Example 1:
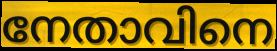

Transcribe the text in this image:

നേതാവിനെ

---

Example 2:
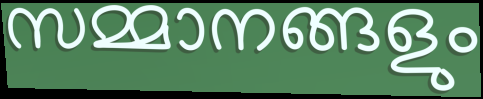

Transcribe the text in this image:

സമ്മാനങ്ങളും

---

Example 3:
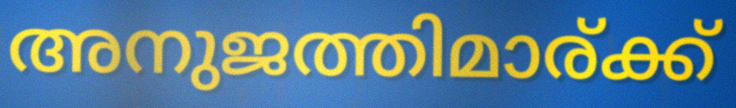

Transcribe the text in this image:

അനുജത്തിമാര്ക്ക്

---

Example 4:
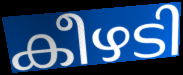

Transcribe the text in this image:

കീഴടി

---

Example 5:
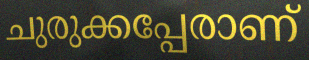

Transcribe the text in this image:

ചുരുക്കപ്പേരാണ്